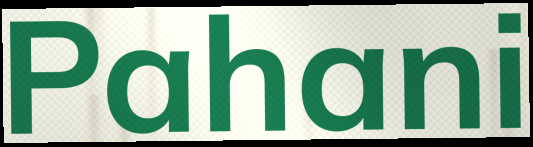
Pahani